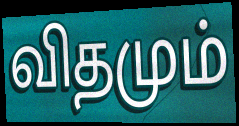
விதமும்